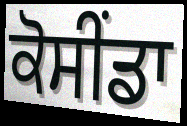
ਕੋਸੀਂਡਾ